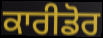
ਕਾਰੀਡੋਰ